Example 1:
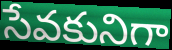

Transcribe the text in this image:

సేవకునిగా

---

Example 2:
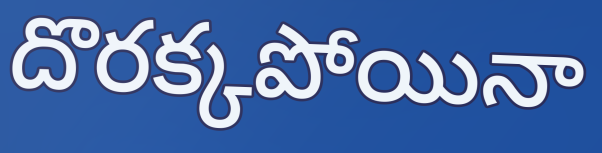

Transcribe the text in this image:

దొరక్కపోయినా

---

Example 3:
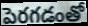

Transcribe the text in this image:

పెరగడంతో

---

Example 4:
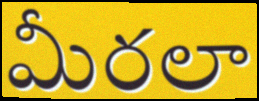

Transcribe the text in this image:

మీరలా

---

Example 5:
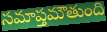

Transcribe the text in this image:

సమాప్తమౌతుంది